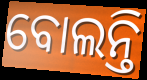
ବୋଲନ୍ତି